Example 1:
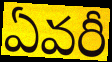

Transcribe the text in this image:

ఏవరీ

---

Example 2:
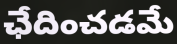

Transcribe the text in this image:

ఛేదించడమే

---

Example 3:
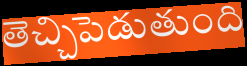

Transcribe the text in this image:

తెచ్చిపెడుతుంది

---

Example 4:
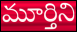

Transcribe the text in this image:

మూర్తిని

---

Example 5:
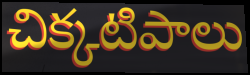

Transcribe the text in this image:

చిక్కటిపాలు